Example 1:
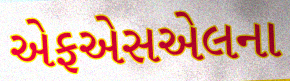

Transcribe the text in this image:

એફએસએલના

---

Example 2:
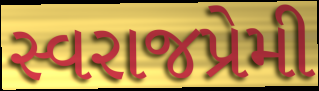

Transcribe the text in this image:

સ્વરાજપ્રેમી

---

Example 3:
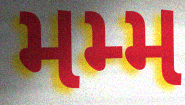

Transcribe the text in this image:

મમ્મ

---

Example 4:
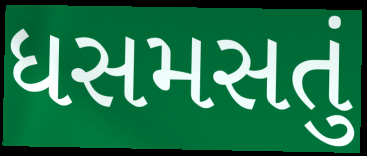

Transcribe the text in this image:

ધસમસતું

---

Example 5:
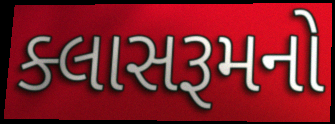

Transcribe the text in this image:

ક્લાસરૂમનો